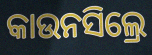
କାଉନସିଲ୍ରେ